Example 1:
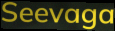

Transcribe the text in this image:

Seevaga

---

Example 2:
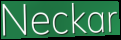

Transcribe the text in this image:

Neckar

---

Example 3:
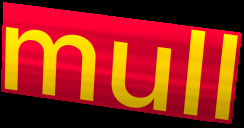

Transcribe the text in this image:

mull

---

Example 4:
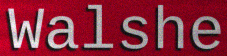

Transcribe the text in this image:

Walshe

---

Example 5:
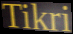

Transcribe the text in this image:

Tikri